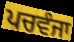
ਪਚਵੰਜਾ